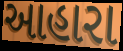
આહારા